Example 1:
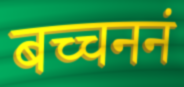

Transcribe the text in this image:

बच्चननं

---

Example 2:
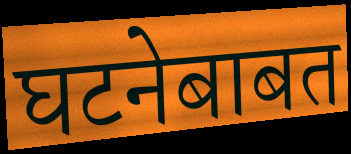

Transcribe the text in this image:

घटनेबाबत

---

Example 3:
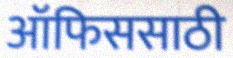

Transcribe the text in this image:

ऑफिससाठी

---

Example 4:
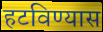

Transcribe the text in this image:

हटविण्यास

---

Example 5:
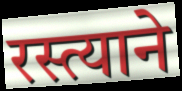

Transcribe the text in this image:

रस्त्याने